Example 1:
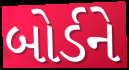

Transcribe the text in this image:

બોર્ડને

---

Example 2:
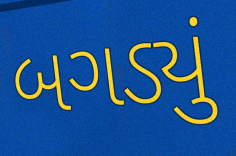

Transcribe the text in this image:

બગડ્યું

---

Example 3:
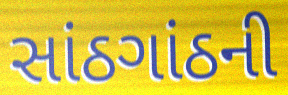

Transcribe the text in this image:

સાંઠગાંઠની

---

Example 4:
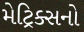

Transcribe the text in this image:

મેટ્રિક્સનો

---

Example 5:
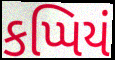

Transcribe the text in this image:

કપ્પિયં